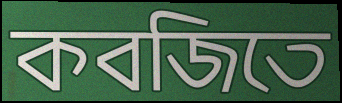
কবজিতে